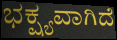
ಭಕ್ಷ್ಯವಾಗಿದೆ